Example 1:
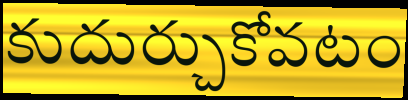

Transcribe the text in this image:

కుదుర్చుకోవటం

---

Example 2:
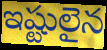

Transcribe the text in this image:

ఇష్టులైన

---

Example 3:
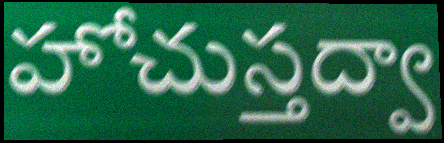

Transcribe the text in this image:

హోచుస్తద్వా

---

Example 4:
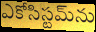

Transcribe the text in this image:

ఎకోసిస్టమ్‌ను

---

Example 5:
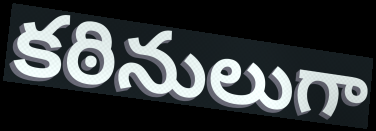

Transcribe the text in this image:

కఠినులుగా